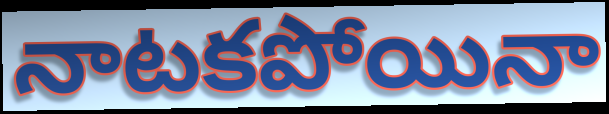
నాటకపోయినా